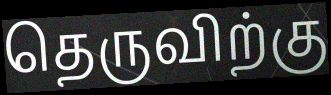
தெருவிற்கு